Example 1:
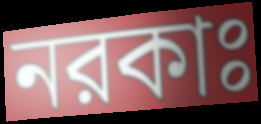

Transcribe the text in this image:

নরকাঃ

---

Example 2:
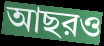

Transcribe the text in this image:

আছরও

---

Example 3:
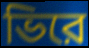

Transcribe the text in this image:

ভিরে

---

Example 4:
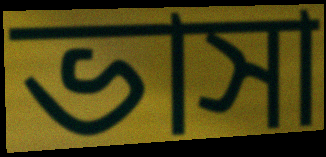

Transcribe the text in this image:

ভাসা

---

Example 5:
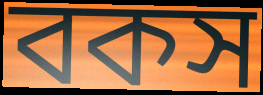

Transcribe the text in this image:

বকস